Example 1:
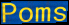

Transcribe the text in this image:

Poms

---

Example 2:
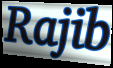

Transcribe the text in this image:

Rajib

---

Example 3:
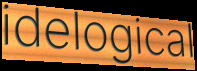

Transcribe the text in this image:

idelogical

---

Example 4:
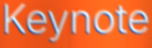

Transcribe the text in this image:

Keynote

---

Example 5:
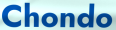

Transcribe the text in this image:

Chondo